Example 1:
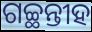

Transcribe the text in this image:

ଗଚ୍ଛନ୍ତୀହ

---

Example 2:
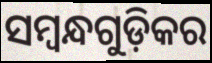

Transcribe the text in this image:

ସମ୍ବନ୍ଧଗୁଡ଼ିକର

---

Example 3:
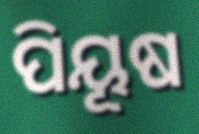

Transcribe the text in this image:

ପିୟୂଷ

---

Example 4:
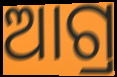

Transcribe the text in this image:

ଆଗ୍ର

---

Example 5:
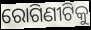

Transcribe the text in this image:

ରୋଗିଣୀଟିକୁ